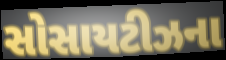
સોસાયટીઝના